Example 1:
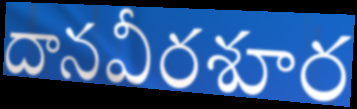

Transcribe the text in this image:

దానవీరశూర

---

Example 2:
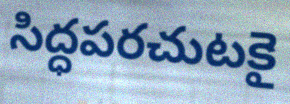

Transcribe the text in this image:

సిద్ధపరచుటకై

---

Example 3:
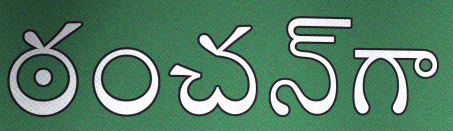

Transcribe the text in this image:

ఠంచన్‌గా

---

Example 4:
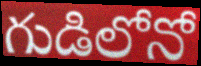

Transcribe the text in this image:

గుడిలోనో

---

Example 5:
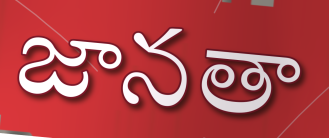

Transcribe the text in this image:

జానతా